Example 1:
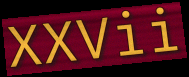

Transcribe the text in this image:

XXVii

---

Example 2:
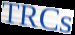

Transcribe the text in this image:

TRCs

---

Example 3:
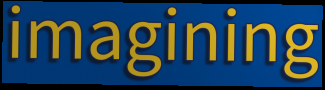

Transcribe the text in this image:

imagining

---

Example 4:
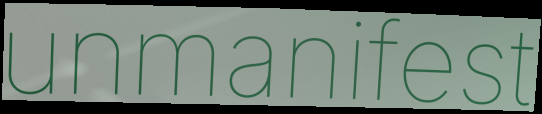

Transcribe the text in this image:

unmanifest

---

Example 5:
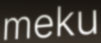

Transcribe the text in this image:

meku